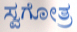
ಸ್ವಗೋತ್ರ